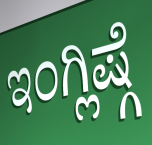
ಇಂಗ್ಲಿಷ್ಗೆ